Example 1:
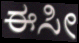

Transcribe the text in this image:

ಈಸೀ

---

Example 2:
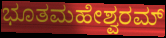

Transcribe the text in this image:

ಭೂತಮಹೇಶ್ವರಮ್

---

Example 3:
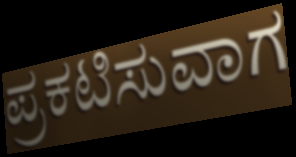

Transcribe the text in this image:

ಪ್ರಕಟಿಸುವಾಗ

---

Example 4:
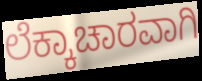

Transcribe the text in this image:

ಲೆಕ್ಕಾಚಾರವಾಗಿ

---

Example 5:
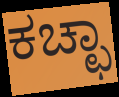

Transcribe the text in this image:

ಕಚ್ಛಾ